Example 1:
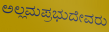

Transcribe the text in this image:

ಅಲ್ಲಮಪ್ರಭುದೇವರು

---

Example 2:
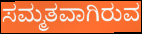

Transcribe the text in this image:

ಸಮ್ಮತವಾಗಿರುವ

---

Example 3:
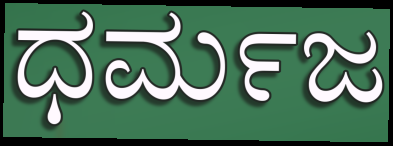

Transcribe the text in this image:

ಧರ್ಮಜ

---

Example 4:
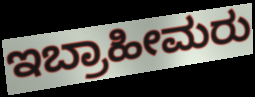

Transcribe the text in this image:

ಇಬ್ರಾಹೀಮರು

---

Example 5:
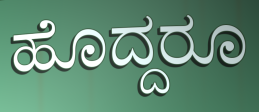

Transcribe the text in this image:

ಹೊದ್ದರೂ